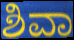
ಶಿವಾ